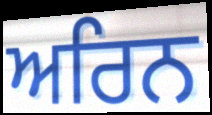
ਅਰਿਨ